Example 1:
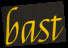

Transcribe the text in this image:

bast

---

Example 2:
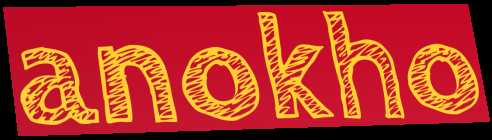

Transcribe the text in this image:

anokho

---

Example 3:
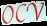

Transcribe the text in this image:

OCV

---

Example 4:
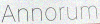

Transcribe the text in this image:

Annorum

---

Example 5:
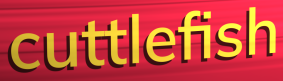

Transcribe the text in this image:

cuttlefish